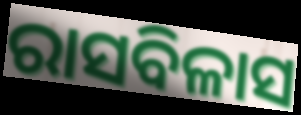
ରାସବିଳାସ